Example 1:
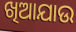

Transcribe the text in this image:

ଖିଆଯାଉ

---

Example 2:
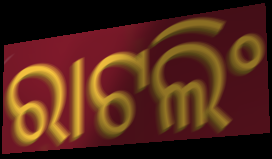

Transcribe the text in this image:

ରାଟଲିଂ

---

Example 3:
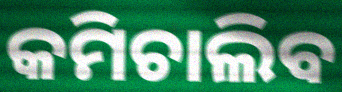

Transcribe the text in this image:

କମିଚାଲିବ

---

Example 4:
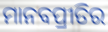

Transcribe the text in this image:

ମାନବପ୍ରୀତିର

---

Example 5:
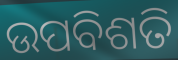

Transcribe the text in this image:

ଉପବିଶତି